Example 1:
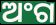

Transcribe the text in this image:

ଅଂଗ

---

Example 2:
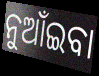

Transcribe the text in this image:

ନୁଆଁଇବା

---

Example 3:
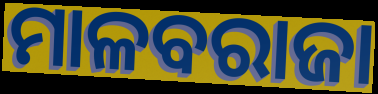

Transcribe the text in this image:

ମାଳବରାଜା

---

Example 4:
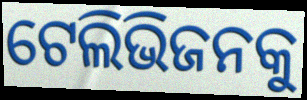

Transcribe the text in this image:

ଟେଲିଭିଜନକୁ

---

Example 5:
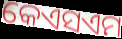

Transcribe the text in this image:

କେଏସଏମ